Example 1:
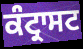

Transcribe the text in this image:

ਕੰਟ੍ਰਾਸਟ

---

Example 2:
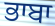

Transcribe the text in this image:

ਭਾਬਾ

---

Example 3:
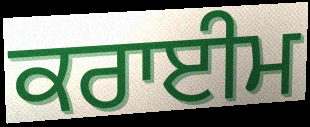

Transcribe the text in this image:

ਕਰਾਈਮ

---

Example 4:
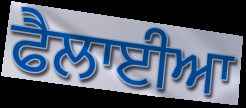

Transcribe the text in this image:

ਫੈਲਾਈਆ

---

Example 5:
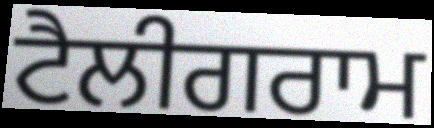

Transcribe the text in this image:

ਟੈਲੀਗਰਾਮ